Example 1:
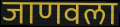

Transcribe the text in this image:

जाणवला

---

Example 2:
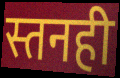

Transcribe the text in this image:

स्तनही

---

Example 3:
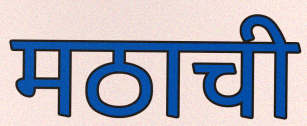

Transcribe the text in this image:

मठाची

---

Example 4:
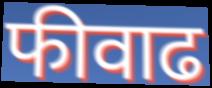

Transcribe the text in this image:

फीवाढ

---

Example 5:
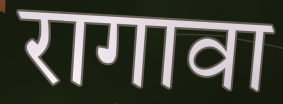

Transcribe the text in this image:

रागावा